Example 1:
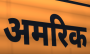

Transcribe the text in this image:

अमरिक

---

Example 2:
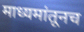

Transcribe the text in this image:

माध्यमांतूनच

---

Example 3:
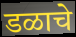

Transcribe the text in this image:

डळाचे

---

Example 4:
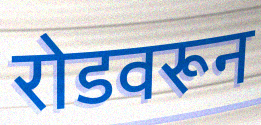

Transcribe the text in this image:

रोडवरून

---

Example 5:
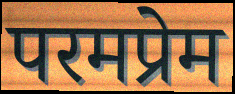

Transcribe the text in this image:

परमप्रेम